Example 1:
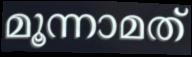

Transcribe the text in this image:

മൂന്നാമത്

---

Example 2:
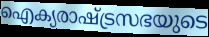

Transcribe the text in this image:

ഐക്യരാഷ്ട്രസഭയുടെ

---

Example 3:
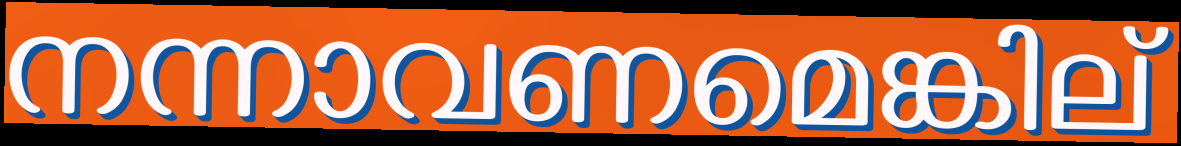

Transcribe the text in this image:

നന്നാവണമെങ്കില്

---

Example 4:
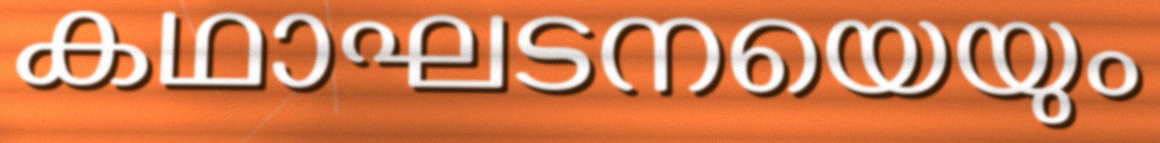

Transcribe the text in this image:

കഥാഘടനയെയും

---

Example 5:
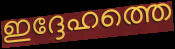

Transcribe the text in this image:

ഇദ്ദേഹത്തെ